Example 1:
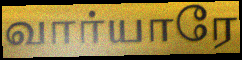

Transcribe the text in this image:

வார்யாரே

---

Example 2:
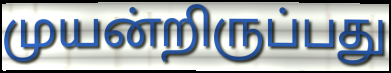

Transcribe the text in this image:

முயன்றிருப்பது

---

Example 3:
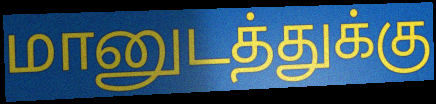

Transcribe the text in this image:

மானுடத்துக்கு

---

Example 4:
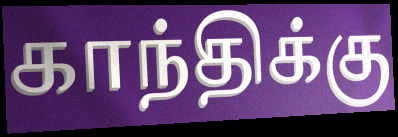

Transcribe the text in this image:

காந்திக்கு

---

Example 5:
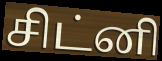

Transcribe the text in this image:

சிட்னி